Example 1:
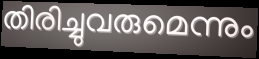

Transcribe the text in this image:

തിരിച്ചുവരുമെന്നും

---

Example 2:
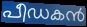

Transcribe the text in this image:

പീഡകൻ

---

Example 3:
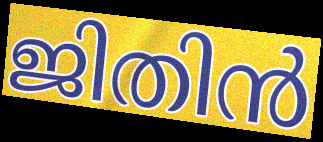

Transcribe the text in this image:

ജിതിൻ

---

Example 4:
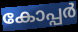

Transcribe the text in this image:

കോപ്പർ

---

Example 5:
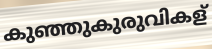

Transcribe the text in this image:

കുഞ്ഞുകുരുവികള്